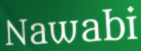
Nawabi